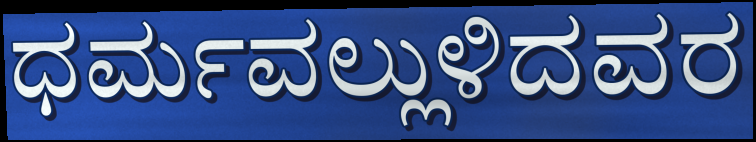
ಧರ್ಮವಲ್ಲುಳಿದವರ